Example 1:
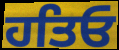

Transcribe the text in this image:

ਹਤਿਓ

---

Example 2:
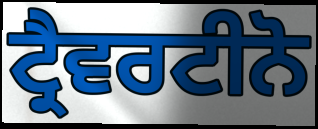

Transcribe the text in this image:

ਟ੍ਰੈਵਰਟੀਨੋ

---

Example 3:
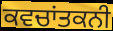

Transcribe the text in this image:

ਕਵਚਾਂਤਕਨੀ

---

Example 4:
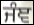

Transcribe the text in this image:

ਜੰਞ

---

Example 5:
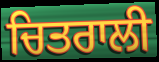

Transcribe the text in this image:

ਚਿਤਰਾਲੀ